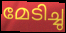
മേടിച്ചു